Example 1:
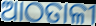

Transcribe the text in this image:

ଆଠତାଳୀ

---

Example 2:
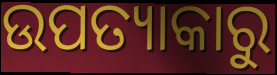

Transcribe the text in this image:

ଉପତ୍ୟାକାରୁ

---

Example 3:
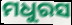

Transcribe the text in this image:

ମଧୁରସ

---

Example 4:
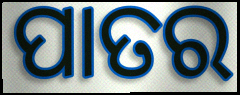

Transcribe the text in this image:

ପାତର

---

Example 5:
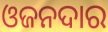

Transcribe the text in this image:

ଓଜନଦାର